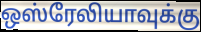
ஒஸ்ரேலியாவுக்கு